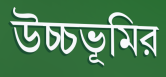
উচ্চভূমির